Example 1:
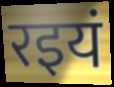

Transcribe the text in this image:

रइयं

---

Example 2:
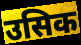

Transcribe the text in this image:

उसिक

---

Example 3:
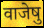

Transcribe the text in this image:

वाजेषु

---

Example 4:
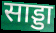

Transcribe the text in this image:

साड्डा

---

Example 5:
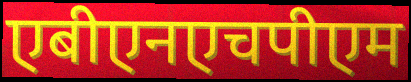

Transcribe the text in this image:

एबीएनएचपीएम